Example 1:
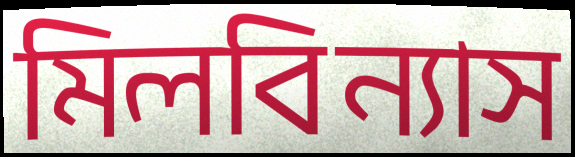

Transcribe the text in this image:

মিলবিন্যাস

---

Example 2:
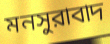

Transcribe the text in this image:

মনসুরাবাদ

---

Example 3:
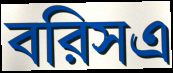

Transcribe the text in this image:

বরিসএ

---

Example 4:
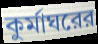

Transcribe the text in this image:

কুর্মাঘরের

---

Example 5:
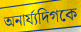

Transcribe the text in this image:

অনার্য্যদিগকে